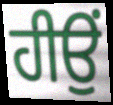
ਹੀਉਂ